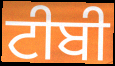
ਟੀਬੀ